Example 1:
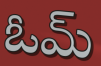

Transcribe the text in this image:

ఓమ్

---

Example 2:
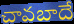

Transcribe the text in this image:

చావబాదే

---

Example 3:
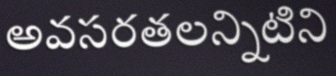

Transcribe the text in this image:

అవసరతలన్నిటిని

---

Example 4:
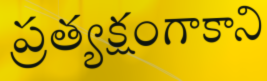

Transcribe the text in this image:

ప్రత్యక్షంగాకాని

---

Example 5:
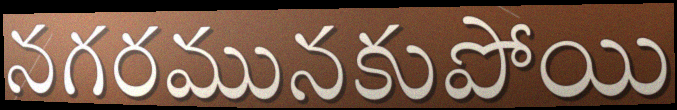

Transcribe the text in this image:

నగరమునకుపోయి